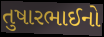
તુષારભાઈનો